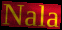
Nala